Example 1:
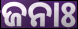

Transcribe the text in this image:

ଜନାଃ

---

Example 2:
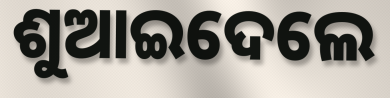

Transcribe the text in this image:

ଶୁଆଇଦେଲେ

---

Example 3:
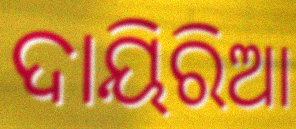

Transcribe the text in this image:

ଦାୟିରିଆ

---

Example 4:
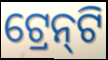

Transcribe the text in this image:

ଟ୍ରେନ୍‌ଟି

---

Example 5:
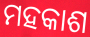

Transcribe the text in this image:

ମହକାଶ